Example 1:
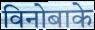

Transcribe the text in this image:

विनोबाके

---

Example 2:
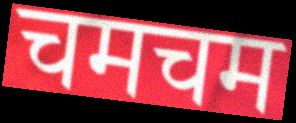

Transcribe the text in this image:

चमचम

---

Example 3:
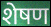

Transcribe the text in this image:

शेषण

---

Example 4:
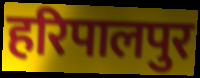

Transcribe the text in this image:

हरिपालपुर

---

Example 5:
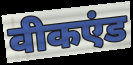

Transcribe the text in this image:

वीकएंड